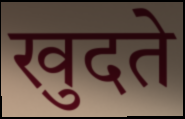
खुदते